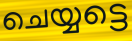
ചെയ്യട്ടെ